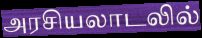
அரசியலாடலில்